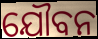
ଯୌବନ